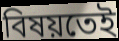
বিষয়তেই